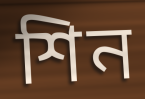
শিন